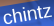
chintz